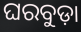
ଘରବୁଡ଼ା